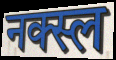
नक्स्ल